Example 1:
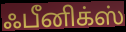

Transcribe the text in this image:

ஃபீனிக்ஸ்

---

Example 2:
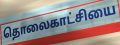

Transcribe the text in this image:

தொலைகாட்சியை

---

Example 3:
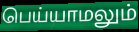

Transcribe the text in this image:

பெய்யாமலும்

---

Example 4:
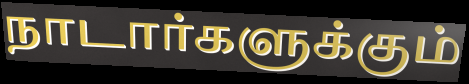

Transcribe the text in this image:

நாடார்களுக்கும்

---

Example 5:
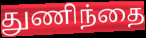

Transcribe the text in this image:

துணிந்தை